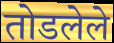
तोडलेले